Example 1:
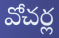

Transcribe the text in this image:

వోచర్ల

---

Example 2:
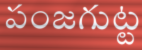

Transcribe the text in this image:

పంజగుట్ట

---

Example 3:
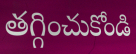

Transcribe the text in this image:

తగ్గించుకోండి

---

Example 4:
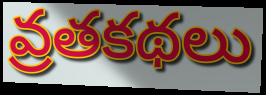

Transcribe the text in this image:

వ్రతకథలు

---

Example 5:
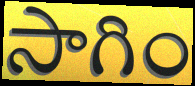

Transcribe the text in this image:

సాగిం